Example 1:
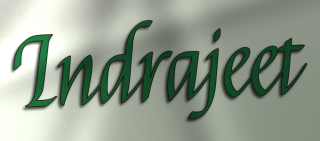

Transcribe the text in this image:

Indrajeet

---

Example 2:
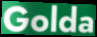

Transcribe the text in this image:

Golda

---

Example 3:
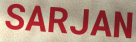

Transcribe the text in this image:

SARJAN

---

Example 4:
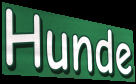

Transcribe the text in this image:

Hunde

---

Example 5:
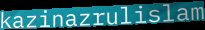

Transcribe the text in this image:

kazinazrulislam